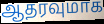
ஆதரவுமாக